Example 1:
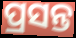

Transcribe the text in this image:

ପ୍ରସନ୍ତ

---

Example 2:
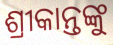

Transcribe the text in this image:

ଶ୍ରୀକାନ୍ତଙ୍କୁ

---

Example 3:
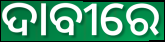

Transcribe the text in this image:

ଦାବୀରେ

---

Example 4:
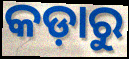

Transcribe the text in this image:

କଡ଼ାରୁ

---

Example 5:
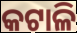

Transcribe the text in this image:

କଟାଳି